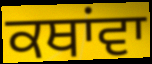
ਕਥਾਂਵਾ